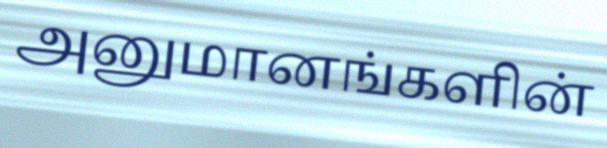
அனுமானங்களின்